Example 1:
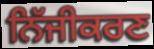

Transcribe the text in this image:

ਨਿੱਜੀਕਰਣ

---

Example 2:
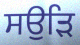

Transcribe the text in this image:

ਸਉੜਿ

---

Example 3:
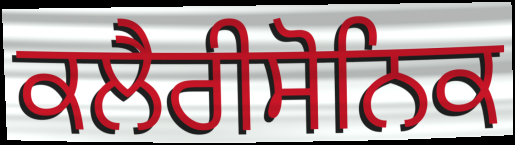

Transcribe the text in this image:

ਕਲੈਰੀਸੋਨਿਕ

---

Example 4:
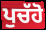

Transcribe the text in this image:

ਪੁਚੱਹੋ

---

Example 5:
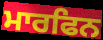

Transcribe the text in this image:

ਮਾਰਫਿਨ